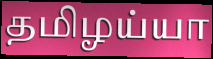
தமிழய்யா